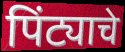
पिंट्याचे